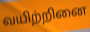
வயிற்றினை